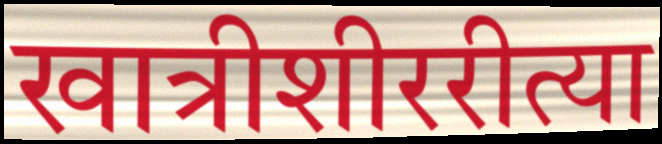
खात्रीशीररीत्या